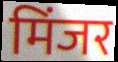
मिंजर